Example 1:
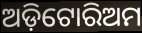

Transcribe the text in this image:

ଅଡ଼ିଟୋରିଅମ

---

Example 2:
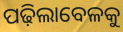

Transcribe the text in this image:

ପଢ଼ିଲାବେଳକୁ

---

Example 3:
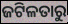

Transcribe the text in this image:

ଜଟିଳତାରୁ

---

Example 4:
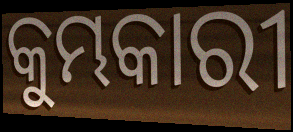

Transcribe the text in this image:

କୁମ୍ଭକାରୀ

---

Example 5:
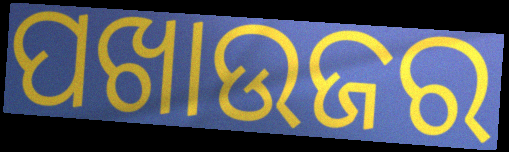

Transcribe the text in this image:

ପଖାଉଜର